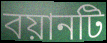
বয়ানটি